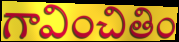
గావించితిం